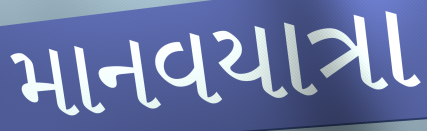
માનવયાત્રા